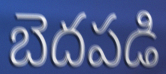
బెదపడి